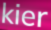
kier